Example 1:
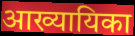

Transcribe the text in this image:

आख्यायिका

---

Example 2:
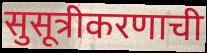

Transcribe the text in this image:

सुसूत्रीकरणाची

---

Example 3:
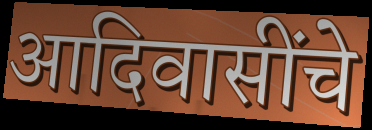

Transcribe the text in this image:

आदिवासींचे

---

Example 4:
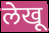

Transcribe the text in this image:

लेखू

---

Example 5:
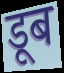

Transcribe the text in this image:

डूब